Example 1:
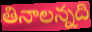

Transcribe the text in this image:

తినాలన్నది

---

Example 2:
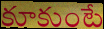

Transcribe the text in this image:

కూకుంటే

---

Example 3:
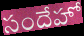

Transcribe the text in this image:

సందేహో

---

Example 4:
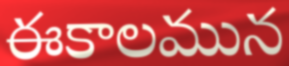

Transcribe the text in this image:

ఈకాలమున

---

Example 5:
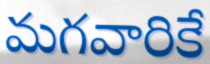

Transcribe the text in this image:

మగవారికే